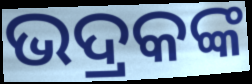
ଭଦ୍ରକଙ୍କ